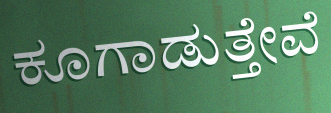
ಕೂಗಾಡುತ್ತೇವೆ